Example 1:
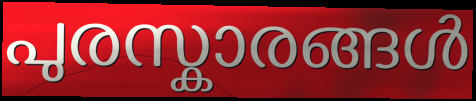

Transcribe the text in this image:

പുരസ്കാരങ്ങൾ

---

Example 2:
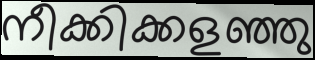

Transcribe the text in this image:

നീക്കിക്കളഞ്ഞു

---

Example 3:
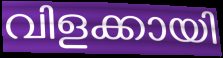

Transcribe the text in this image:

വിളക്കായി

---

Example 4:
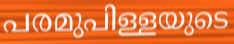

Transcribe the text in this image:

പരമുപിള്ളയുടെ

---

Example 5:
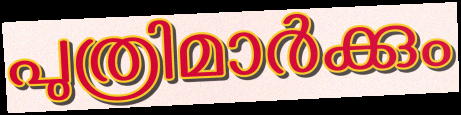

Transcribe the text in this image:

പുത്രിമാർക്കും